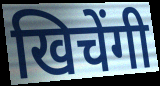
खिचेंगी